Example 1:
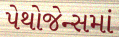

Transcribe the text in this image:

પેથોજેન્સમાં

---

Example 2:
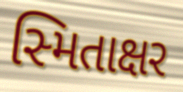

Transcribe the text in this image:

સ્મિતાક્ષર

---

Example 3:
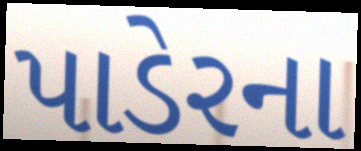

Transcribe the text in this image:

પાડેરના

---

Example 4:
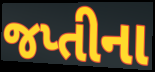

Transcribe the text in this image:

જપ્તીના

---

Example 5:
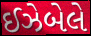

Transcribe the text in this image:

ઈઝેબેલે